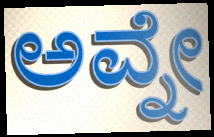
ಅವ್ನೇ